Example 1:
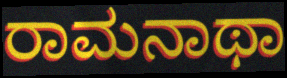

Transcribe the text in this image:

ರಾಮನಾಥಾ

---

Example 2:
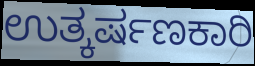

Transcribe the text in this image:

ಉತ್ಕರ್ಷಣಕಾರಿ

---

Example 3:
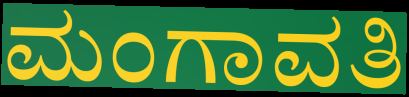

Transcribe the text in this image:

ಮಂಗಾವತಿ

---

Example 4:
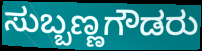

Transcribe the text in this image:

ಸುಬ್ಬಣ್ಣಗೌಡರು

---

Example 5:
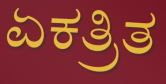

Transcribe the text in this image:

ಏಕತ್ರಿತ